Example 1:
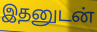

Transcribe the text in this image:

இதனுடன்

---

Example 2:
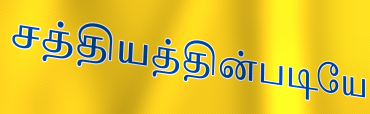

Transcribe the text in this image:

சத்தியத்தின்படியே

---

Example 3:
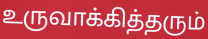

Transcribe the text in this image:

உருவாக்கித்தரும்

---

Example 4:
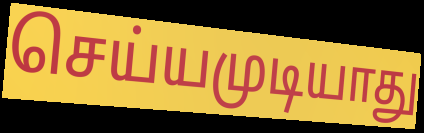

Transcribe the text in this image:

செய்யமுடியாது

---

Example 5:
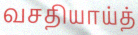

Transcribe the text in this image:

வசதியாய்த்